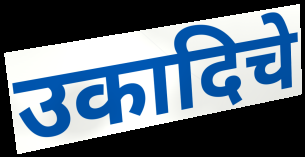
उकादिचे